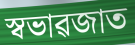
স্বভাৱজাত